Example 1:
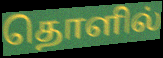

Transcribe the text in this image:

தொளில்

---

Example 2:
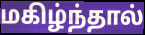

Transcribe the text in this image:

மகிழ்ந்தால்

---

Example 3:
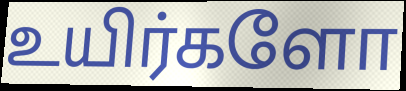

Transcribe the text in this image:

உயிர்களோ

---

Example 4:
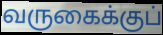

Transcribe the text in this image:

வருகைக்குப்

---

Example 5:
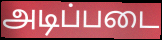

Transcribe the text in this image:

அடிப்படை